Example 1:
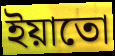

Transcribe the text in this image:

ইয়াতো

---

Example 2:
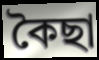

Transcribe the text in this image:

কৈছা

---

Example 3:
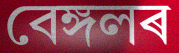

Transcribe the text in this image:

বেঙ্গলৰ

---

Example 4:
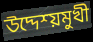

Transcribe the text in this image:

উদ্দেশ্য়মুখী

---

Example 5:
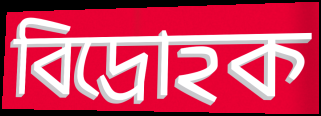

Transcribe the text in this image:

বিদ্ৰোহক